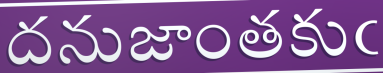
దనుజాంతకుఁ